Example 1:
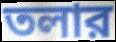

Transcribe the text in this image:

তলার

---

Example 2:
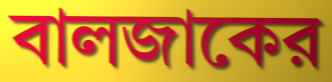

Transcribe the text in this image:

বালজাকের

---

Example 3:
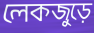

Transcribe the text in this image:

লেকজুড়ে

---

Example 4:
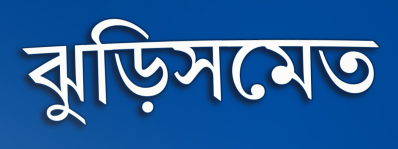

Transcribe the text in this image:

ঝুড়িসমেত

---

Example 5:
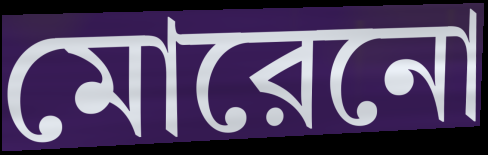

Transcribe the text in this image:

মোরেনো